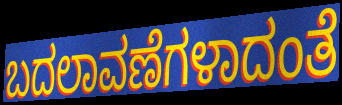
ಬದಲಾವಣೆಗಳಾದಂತೆ